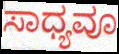
ಸಾಧ್ಯವೂ